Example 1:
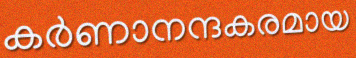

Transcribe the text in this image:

കർണാനന്ദകരമായ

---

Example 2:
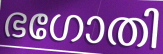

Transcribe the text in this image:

ഭഗോതി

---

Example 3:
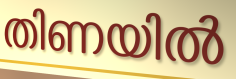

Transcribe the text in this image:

തിണയിൽ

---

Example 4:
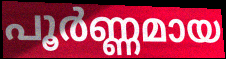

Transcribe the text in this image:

പൂർണ്ണമായ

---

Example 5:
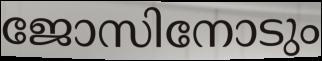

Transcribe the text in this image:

ജോസിനോടും